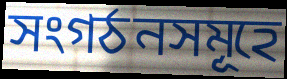
সংগঠনসমূহে